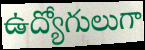
ఉద్యోగులుగా